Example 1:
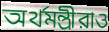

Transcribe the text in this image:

অর্থমন্ত্রীরাও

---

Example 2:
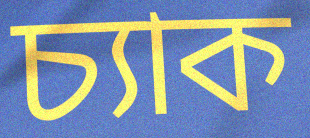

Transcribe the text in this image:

চ্যাক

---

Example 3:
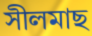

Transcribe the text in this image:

সীলমাছ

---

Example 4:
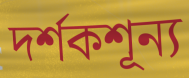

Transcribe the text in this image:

দর্শকশূন্য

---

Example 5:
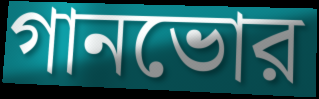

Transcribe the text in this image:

গানভোর